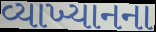
વ્યાખ્યાનના